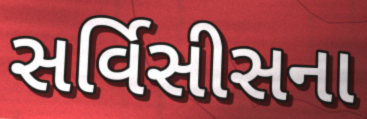
સર્વિસીસના